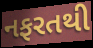
નફરતથી